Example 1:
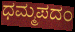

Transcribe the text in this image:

ಧಮ್ಮಪದಂ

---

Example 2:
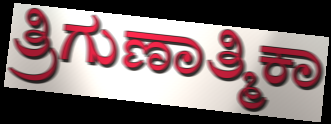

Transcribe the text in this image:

ತ್ರಿಗುಣಾತ್ಮಿಕಾ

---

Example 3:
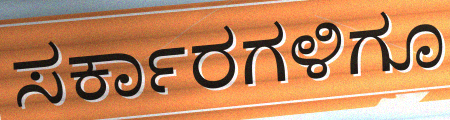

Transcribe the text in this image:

ಸರ್ಕಾರಗಳಿಗೂ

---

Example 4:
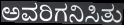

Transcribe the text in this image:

ಅವರಿಗನಿಸಿತು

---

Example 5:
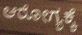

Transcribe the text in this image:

ಆರೋಗ್ಯಕ್ಕೆ